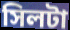
সিলটা